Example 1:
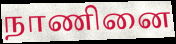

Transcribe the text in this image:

நாணினை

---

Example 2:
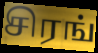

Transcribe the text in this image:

சிரங்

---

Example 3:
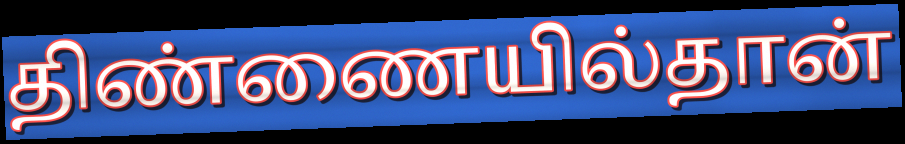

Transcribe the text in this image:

திண்ணையில்தான்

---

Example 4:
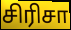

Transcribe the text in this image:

சிரிசா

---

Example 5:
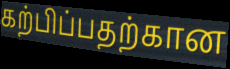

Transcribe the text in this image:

கற்பிப்பதற்கான